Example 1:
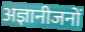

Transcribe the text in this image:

अज्ञानीजनों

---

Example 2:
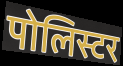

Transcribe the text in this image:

पोलिस्टर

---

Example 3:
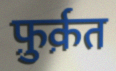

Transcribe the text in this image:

फ़ुर्क़त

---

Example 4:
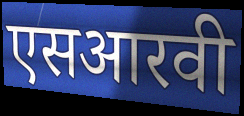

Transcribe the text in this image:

एसआरवी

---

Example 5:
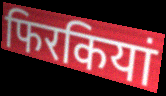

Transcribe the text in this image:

फिरकियां